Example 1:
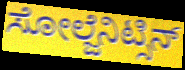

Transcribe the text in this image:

ಸೋಲ್ಜೆನಿಟ್ಸಿನ್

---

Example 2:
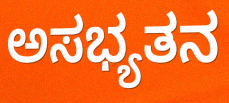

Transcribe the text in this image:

ಅಸಭ್ಯತನ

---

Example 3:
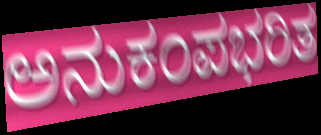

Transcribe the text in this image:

ಅನುಕಂಪಭರಿತ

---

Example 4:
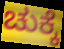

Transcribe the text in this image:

ಚುಕ್ಕೆ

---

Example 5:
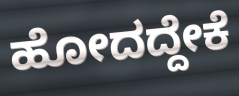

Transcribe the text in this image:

ಹೋದದ್ದೇಕೆ